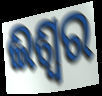
ଈଶ୍ଵର